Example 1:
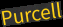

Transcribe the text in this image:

Purcell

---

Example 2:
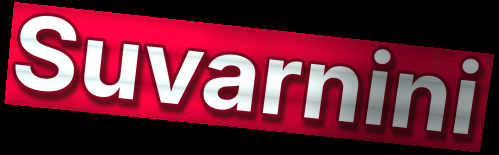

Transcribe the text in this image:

Suvarnini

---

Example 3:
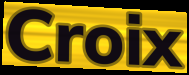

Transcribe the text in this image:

Croix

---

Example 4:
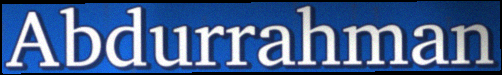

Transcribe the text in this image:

Abdurrahman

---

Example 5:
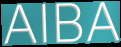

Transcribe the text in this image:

AIBA